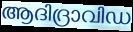
ആദിദ്രാവിഡ